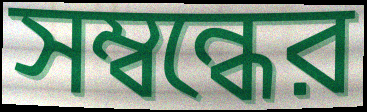
সম্বন্ধের